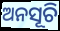
ଅନସୂଚି